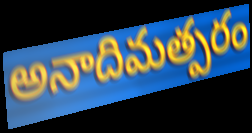
అనాదిమత్పరం